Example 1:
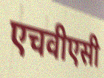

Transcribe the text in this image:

एचवीएसी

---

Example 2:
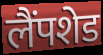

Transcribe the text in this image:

लैंपशेड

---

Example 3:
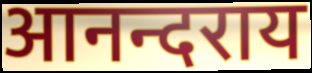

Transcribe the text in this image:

आनन्दराय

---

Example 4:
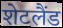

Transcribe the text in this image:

शेटलैंड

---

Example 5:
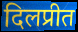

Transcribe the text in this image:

दिलप्रीत